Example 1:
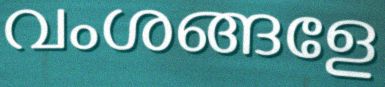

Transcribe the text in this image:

വംശങ്ങളേ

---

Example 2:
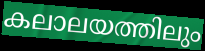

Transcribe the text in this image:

കലാലയത്തിലും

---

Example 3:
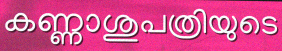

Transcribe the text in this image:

കണ്ണാശുപത്രിയുടെ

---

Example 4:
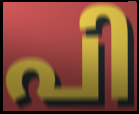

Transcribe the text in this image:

പി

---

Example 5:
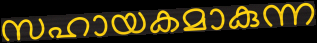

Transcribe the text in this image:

സഹായകമാകുന്ന